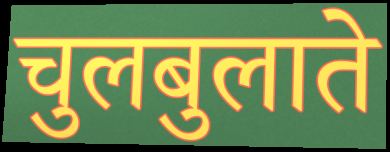
चुलबुलाते